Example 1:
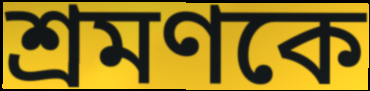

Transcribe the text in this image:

শ্রমণকে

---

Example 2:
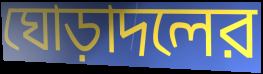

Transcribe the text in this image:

ঘোড়াদলের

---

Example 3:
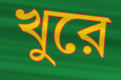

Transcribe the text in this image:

খুরে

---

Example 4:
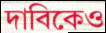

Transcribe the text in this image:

দাবিকেও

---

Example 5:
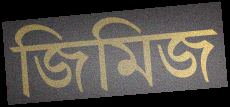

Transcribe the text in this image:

জিমিজ